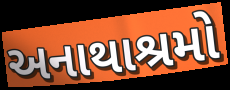
અનાથાશ્રમો